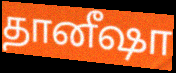
தானீஷா